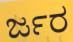
ರ್ಜರ